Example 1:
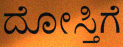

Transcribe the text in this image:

ದೋಸ್ತಿಗೆ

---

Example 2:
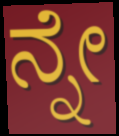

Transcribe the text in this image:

ನ್ನೇ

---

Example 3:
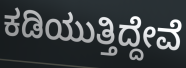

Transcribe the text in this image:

ಕಡಿಯುತ್ತಿದ್ದೇವೆ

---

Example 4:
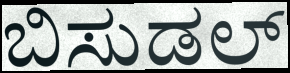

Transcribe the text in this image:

ಬಿಸುಡಲ್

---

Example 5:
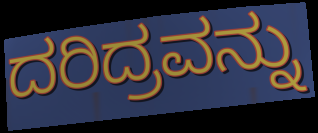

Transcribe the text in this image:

ದರಿದ್ರವನ್ನು